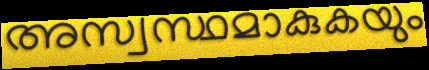
അസ്വസ്ഥമാകുകയും